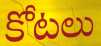
కోటలు